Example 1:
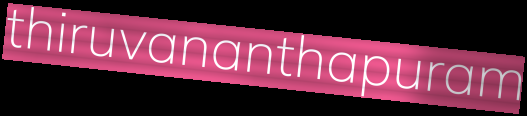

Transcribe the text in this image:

thiruvananthapuram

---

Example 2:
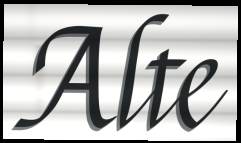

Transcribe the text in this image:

Alte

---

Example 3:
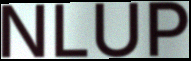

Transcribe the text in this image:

NLUP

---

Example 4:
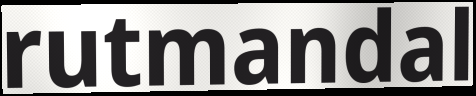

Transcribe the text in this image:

rutmandal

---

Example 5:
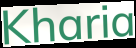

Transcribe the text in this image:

Kharia